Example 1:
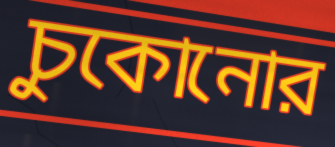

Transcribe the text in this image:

চুকোনোর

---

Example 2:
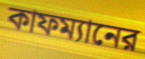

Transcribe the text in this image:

কাফম্যানের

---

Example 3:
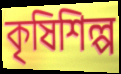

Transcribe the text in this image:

কৃষিশিল্প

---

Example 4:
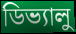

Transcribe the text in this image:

ডিভ্যালু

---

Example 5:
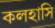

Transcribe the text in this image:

কলহাসি